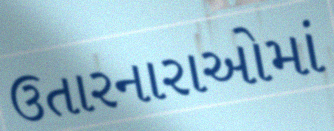
ઉતારનારાઓમાં